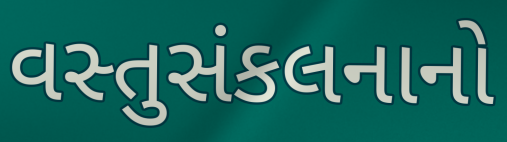
વસ્તુસંકલનાનો